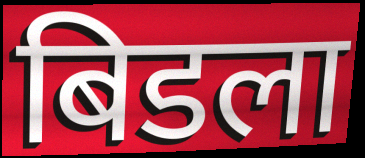
बिडला